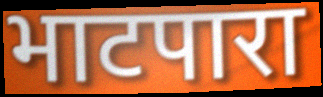
भाटपारा